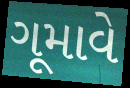
ગૂમાવે